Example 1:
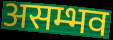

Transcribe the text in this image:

असम्भव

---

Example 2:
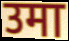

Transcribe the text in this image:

उमा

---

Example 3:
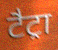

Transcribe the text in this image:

टैट्रा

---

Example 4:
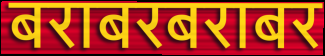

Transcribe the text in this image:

बराबरबराबर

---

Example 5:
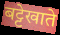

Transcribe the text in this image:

बट्टेखाते